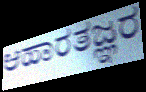
ಆಹಾರತಜ್ಞರ